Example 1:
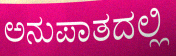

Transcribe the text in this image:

ಅನುಪಾತದಲ್ಲಿ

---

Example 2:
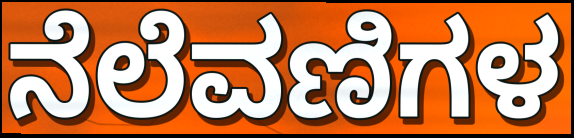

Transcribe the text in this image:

ನೆಲೆವಣಿಗಳ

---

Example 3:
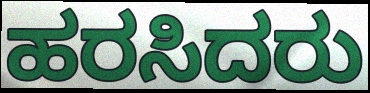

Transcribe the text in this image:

ಹರಸಿದರು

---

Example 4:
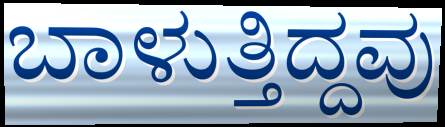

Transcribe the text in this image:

ಬಾಳುತ್ತಿದ್ದವು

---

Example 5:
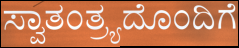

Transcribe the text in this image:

ಸ್ವಾತಂತ್ರ್ಯದೊಂದಿಗೆ